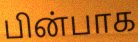
பின்பாக